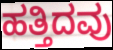
ಹತ್ತಿದವು